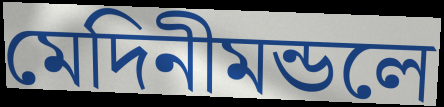
মেদিনীমন্ডলে